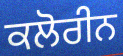
ਕਲੋਰੀਨ